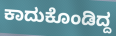
ಕಾದುಕೊಂಡಿದ್ದ